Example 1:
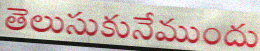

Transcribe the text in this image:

తెలుసుకునేముందు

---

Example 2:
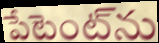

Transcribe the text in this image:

పేటెంట్‌ను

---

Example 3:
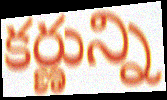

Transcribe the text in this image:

కర్ణున్ని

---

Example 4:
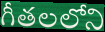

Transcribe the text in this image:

గీతలలోని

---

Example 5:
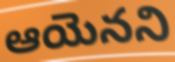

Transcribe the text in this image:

ఆయెనని